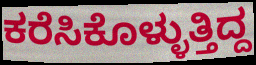
ಕರೆಸಿಕೊಳ್ಳುತ್ತಿದ್ದ